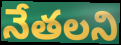
నేతలని